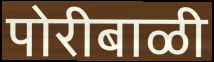
पोरीबाळी